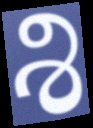
శి